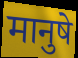
मानुषे